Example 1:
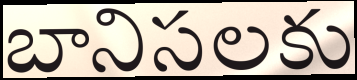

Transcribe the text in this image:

బానిసలకు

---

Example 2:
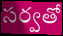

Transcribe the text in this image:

సర్వతో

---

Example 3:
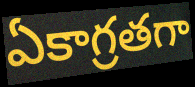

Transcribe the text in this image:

ఏకాగ్రతగా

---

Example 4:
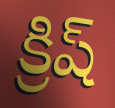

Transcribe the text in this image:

క్రిష్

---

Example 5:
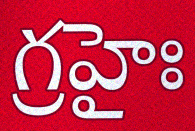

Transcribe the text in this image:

గ్రహైః